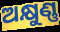
ଅକ୍ଷୁଣ୍ଣ